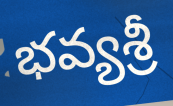
భవ్యశ్రీ